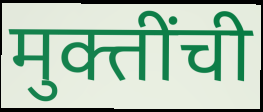
मुक्तींची